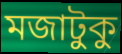
মজাটুকু